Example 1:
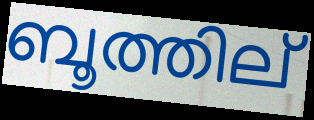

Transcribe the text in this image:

ബൂത്തില്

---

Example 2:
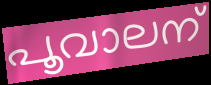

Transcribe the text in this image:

പൂവാലന്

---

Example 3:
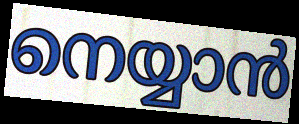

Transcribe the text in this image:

നെയ്യാൻ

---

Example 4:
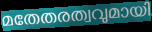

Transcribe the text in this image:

മതേതരത്വവുമായി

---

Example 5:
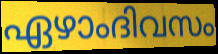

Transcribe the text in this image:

ഏഴാംദിവസം